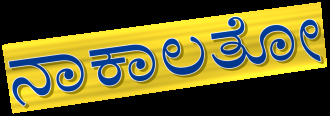
ನಾಕಾಲತೋ